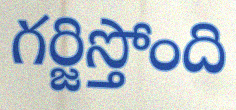
గర్జిస్తోంది